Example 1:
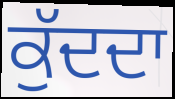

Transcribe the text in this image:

ਕੁੱਦਦਾ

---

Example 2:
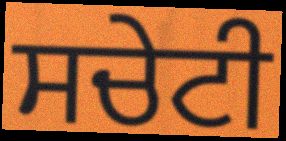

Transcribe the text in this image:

ਸਚੇਟੀ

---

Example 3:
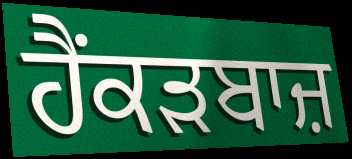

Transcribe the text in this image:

ਹੈਂਕੜਬਾਜ਼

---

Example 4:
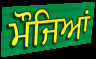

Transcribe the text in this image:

ਮੌਜਿਆਂ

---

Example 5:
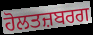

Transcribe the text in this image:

ਹੋਲਤਜ਼ਬਰਗ